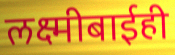
लक्ष्मीबाईही